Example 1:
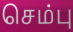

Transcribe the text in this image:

செம்பு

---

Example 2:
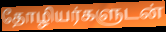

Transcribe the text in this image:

தோழியர்களுடன்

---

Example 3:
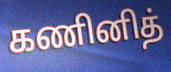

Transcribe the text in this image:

கணினித்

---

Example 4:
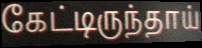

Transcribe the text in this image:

கேட்டிருந்தாய்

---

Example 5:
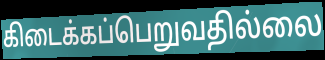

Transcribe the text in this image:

கிடைக்கப்பெறுவதில்லை